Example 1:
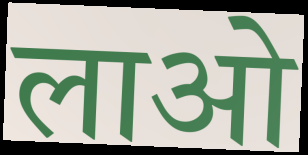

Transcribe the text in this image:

लाओ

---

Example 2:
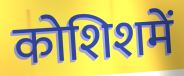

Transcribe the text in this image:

कोशिशमें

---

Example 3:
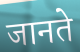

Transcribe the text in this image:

जानते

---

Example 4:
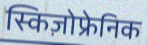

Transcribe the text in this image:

स्किज़ोफ्रेनिक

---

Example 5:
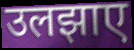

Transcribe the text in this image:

उलझाए